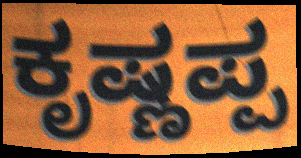
ಕೃಷ್ಣಪ್ಪ